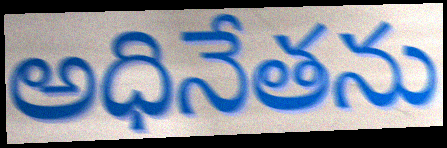
అధినేతను